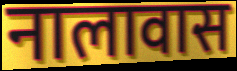
नालावास